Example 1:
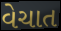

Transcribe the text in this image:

વેચાત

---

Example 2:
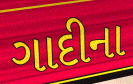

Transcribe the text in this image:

ગાદીના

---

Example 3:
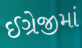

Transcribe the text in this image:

ઈગ્રેજીમાં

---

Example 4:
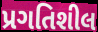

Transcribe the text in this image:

પ્રગતિશીલ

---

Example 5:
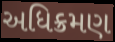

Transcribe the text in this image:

અધિક્રમણ